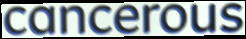
cancerous